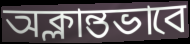
অক্লান্তভাবে